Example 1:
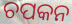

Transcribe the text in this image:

ଚପକନ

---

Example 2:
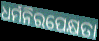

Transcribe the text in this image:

ଧର୍ମନିରପେକ୍ଷତା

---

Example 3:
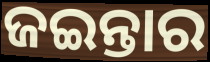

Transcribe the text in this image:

ଜଇନ୍ତାର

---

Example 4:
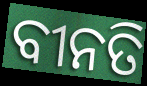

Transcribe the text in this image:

ବୀନତି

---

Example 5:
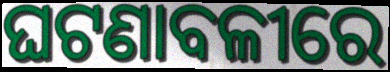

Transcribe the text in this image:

ଘଟଣାବଳୀରେ